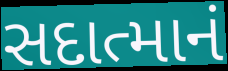
સદાત્માનં